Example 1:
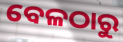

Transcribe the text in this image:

ବେଳଠାରୁ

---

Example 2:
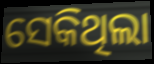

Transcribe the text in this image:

ସେକିଥିଲା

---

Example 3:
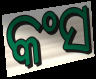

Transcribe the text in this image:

କଂସ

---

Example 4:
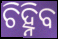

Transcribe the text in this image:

ଚିହ୍ନିବ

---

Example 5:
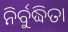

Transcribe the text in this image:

ନିର୍ବୁଦ୍ଧିତା